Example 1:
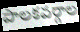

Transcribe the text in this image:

పాలకవర్గాల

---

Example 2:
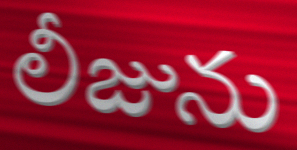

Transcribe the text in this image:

లీజును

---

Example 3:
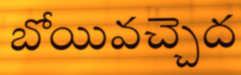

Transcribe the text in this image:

బోయివచ్చెద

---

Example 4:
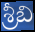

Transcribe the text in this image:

శ్రీబి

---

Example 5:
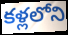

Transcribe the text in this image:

కళ్లలోని